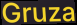
Gruza